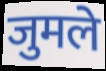
जुमले